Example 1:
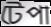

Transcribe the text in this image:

টেপা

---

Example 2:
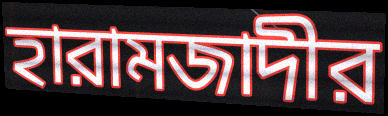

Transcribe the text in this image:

হারামজাদীর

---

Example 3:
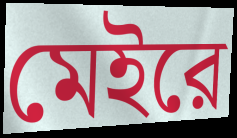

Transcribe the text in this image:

মেইরে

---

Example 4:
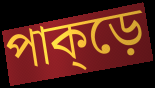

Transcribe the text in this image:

পাক্ড়ে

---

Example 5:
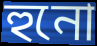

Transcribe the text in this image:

হুনো